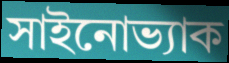
সাইনোভ্যাক